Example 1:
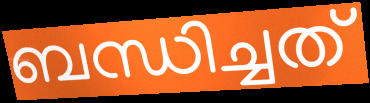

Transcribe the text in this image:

ബന്ധിച്ചത്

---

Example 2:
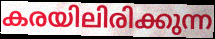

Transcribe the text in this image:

കരയിലിരിക്കുന്ന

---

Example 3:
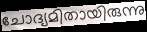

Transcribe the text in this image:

ചോദ്യമിതായിരുന്നു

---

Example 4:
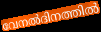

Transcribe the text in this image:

വേനൽദിനത്തിൽ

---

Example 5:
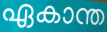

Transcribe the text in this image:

ഏകാന്ത